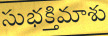
సుభక్తిమాశు